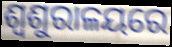
ଶ୍ଵଶୁରାଳୟରେ